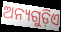
ଅନ୍ୟଗୁଡ଼ିଏ